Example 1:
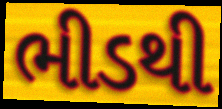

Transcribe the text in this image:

ભીડથી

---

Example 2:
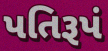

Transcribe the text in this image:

પતિરૂપં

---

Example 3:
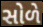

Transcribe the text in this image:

સોળે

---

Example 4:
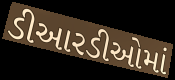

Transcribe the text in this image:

ડીઆરડીઓમાં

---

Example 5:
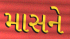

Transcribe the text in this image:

માસને